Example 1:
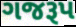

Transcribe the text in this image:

ગજરૂપ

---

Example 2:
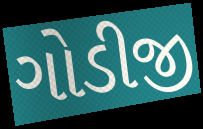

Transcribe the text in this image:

ગોડીજી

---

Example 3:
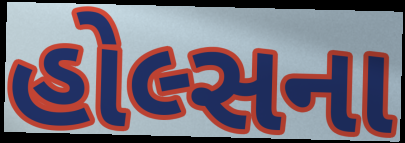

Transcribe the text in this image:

હોલ્સના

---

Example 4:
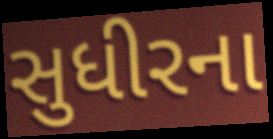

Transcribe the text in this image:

સુધીરના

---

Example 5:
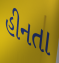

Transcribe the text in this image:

હીનતા